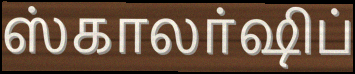
ஸ்காலர்ஷிப்